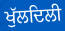
ਖੁੱਲਦਿਲੀ